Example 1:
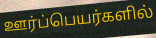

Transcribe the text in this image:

ஊர்ப்பெயர்களில்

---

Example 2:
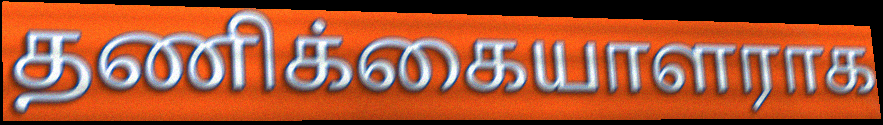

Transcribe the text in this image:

தணிக்கையாளராக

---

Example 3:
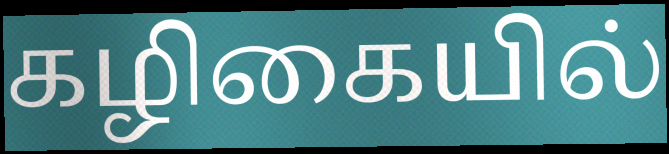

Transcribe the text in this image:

கழிகையில்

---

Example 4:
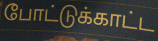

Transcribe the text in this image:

போட்டுக்காட்ட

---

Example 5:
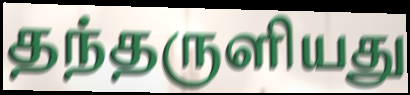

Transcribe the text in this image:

தந்தருளியது